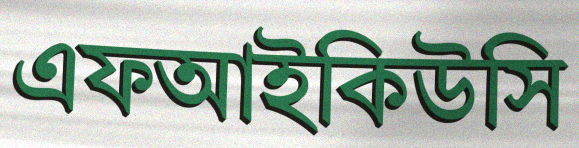
এফআইকিউসি